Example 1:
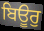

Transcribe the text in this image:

ਬਿਊਰੁ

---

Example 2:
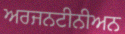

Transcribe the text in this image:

ਅਰਜਨਟੀਨੀਅਨ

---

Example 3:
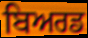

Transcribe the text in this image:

ਬਿਅਰਡ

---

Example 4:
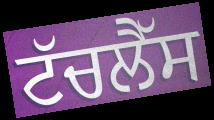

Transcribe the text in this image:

ਟੱਚਲੈੱਸ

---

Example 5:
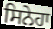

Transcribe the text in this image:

ਸਿਨੇਹਾ